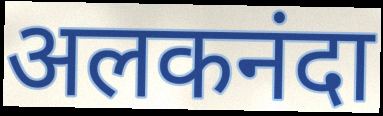
अलकनंदा